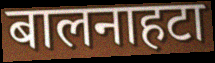
बालनाहटा